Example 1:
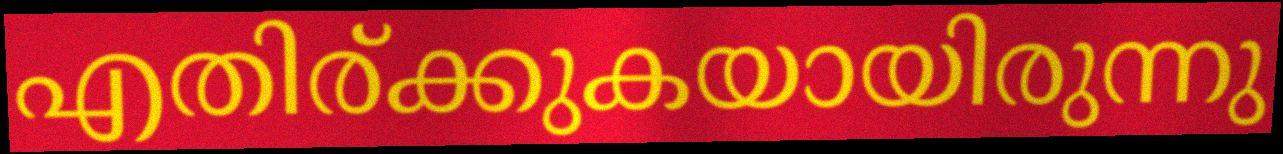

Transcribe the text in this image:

എതിര്ക്കുകയായിരുന്നു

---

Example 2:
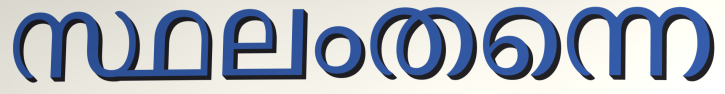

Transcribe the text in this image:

സ്ഥലംതന്നെ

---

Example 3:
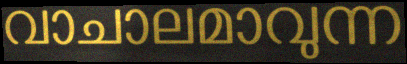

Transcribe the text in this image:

വാചാലമാവുന്ന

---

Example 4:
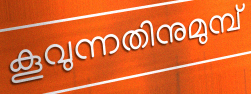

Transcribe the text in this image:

കൂവുന്നതിനുമുമ്പ്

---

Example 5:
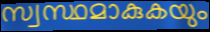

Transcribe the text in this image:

സ്വസ്ഥമാകുകയും